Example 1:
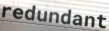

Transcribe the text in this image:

redundant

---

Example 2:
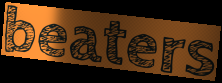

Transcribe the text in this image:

beaters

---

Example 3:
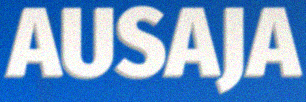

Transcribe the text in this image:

AUSAJA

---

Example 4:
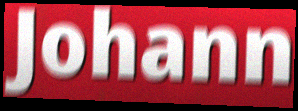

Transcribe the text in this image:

Johann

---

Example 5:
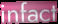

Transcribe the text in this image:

infact